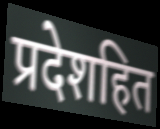
प्रदेशहित